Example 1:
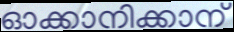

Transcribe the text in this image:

ഓക്കാനിക്കാന്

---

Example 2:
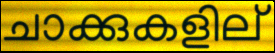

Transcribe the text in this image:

ചാക്കുകളില്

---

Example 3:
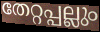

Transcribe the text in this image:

തേറ്റപ്പല്ലും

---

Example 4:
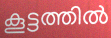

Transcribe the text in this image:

കൂട്ടത്തിൽ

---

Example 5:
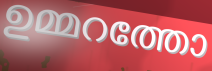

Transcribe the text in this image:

ഉമ്മറത്തോ